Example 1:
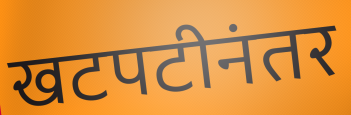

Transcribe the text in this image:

खटपटीनंतर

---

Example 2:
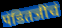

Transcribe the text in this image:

पंडितजींचं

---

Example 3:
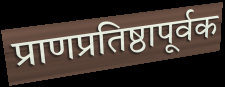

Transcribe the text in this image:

प्राणप्रतिष्ठापूर्वक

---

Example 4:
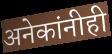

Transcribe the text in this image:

अनेकांनीही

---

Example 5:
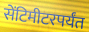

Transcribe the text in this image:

सेंटिमीटरपर्यंत